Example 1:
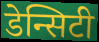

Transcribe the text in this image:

डेन्सिटी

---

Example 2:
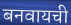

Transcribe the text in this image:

बनवायची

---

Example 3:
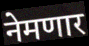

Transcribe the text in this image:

नेमणार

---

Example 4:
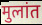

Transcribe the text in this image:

मुलांत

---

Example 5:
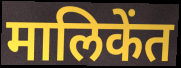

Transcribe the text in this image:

मालिकेंत